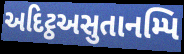
અદિટ્ઠઅસુતાનમ્પિ